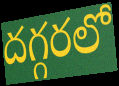
దగ్గరలో